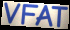
VFAT